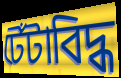
টেঁটাবিদ্ধ